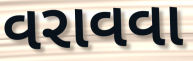
વરાવવા